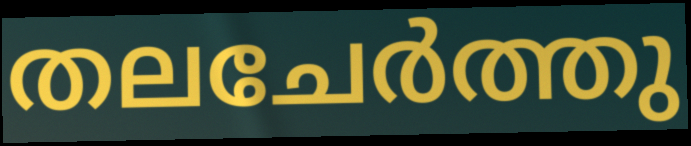
തലചേർത്തു